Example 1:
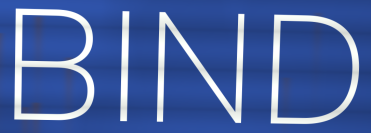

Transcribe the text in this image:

BIND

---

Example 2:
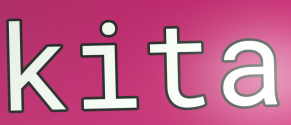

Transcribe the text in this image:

kita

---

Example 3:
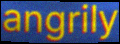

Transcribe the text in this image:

angrily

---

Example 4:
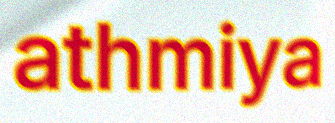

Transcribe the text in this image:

athmiya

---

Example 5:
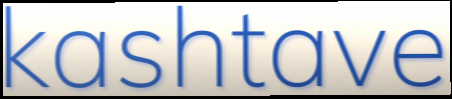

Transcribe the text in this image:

kashtave